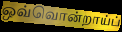
ஒவ்வொன்றாய்ப்